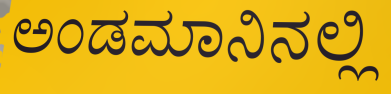
ಅಂಡಮಾನಿನಲ್ಲಿ